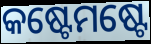
କଷ୍ଟେମଷ୍ଟେ